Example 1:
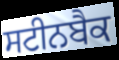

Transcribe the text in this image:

ਸਟੀਨਬੈਕ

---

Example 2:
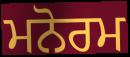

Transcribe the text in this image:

ਮਨੋਰਮ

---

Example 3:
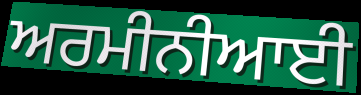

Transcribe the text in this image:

ਅਰਮੀਨੀਆਈ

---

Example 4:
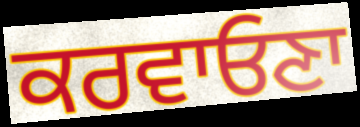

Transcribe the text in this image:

ਕਰਵਾਓਣਾ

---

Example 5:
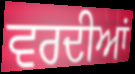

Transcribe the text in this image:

ਵਰਦੀਆਂ